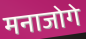
मनाजोगे